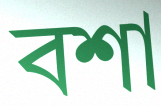
বশা